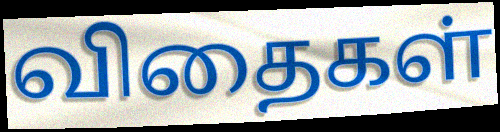
விதைகள்